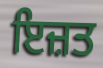
ਇਜ਼ਤ